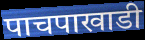
पाचपाखाडी